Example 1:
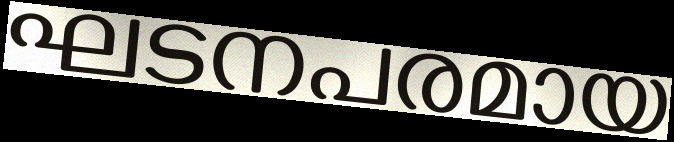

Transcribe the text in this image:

ഘടനപരമായ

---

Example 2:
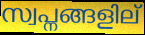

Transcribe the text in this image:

സ്വപ്നങ്ങളില്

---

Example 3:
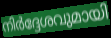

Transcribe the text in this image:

നിർദ്ദേശവുമായി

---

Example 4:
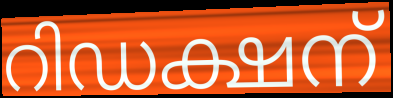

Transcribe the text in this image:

റിഡക്ഷന്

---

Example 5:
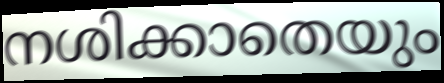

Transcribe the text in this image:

നശിക്കാതെയും